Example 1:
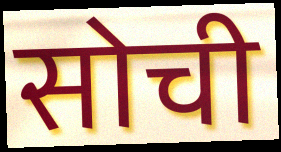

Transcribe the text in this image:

सोची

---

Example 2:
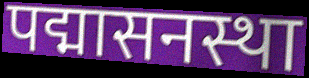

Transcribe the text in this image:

पद्मासनस्था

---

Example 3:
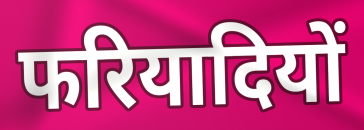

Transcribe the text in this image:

फरियादियों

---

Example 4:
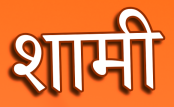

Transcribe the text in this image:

शामी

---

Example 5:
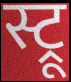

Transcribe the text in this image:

स्ट्रू